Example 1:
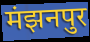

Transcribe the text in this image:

मंझनपुर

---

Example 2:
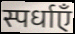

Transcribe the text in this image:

स्पर्धाएँ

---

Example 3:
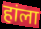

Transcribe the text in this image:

हांला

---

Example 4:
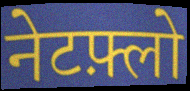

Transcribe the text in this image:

नेटफ़्लो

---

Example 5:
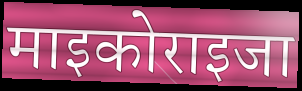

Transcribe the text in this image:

माइकोराइजा